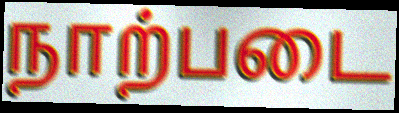
நாற்படை